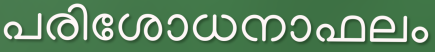
പരിശോധനാഫലം